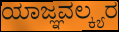
ಯಾಜ್ಞವಲ್ಕ್ಯರ